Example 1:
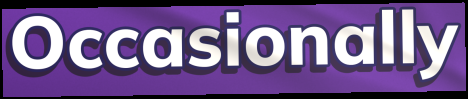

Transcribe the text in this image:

Occasionally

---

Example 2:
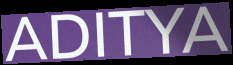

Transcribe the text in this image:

ADITYA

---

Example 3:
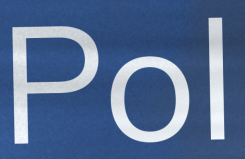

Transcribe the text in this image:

Pol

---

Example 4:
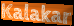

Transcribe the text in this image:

Kalakar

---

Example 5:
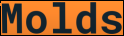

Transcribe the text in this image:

Molds